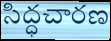
సిద్ధచారణ